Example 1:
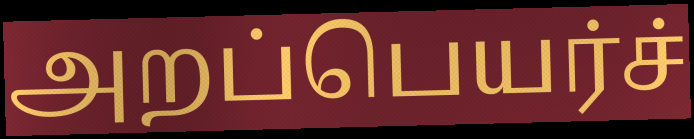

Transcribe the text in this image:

அறப்பெயர்ச்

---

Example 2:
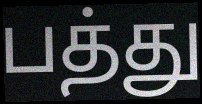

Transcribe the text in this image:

பத்து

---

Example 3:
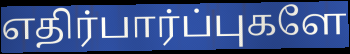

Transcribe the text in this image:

எதிர்பார்ப்புகளே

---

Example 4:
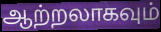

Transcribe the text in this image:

ஆற்றலாகவும்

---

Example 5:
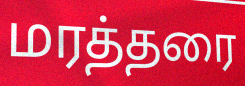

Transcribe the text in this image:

மரத்தரை